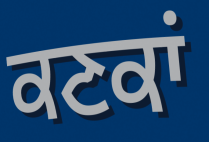
ਕਣਕਾਂ